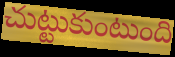
చుట్టుకుంటుంది